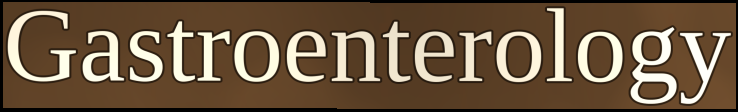
Gastroenterology